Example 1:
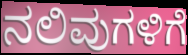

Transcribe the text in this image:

ನಲಿವುಗಳಿಗೆ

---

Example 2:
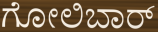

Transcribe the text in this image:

ಗೋಲಿಬಾರ್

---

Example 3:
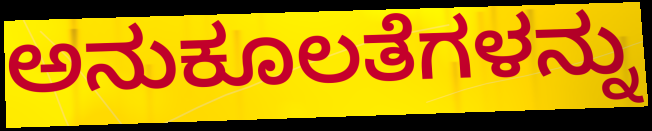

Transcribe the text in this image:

ಅನುಕೂಲತೆಗಳನ್ನು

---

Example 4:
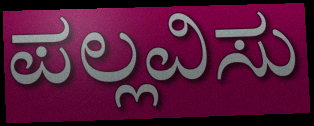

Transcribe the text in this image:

ಪಲ್ಲವಿಸು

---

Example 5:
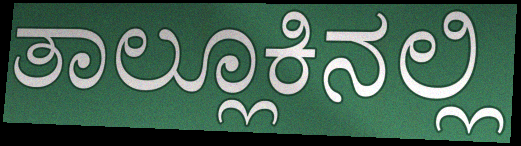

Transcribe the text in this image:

ತಾಲ್ಲೂಕಿನಲ್ಲಿ